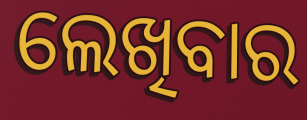
ଲେଖିବାର